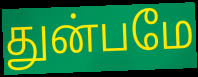
துன்பமே